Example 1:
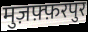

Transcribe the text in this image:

मुज़फ़्फ़रपुर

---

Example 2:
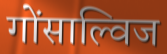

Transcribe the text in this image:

गोंसाल्विज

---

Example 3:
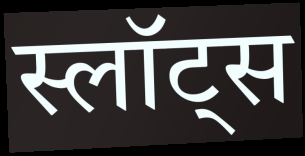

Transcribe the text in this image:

स्लॉट्स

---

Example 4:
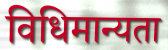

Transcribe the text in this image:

विधिमान्यता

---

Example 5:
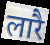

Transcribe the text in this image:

लारै